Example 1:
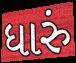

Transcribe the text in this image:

ધારું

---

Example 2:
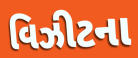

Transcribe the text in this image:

વિઝીટના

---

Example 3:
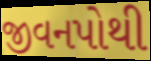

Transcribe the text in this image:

જીવનપોથી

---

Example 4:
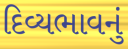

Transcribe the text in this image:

દિવ્યભાવનું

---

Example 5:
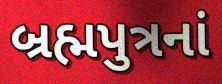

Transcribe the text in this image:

બ્રહ્મપુત્રનાં